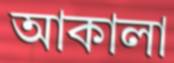
আকালা